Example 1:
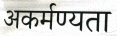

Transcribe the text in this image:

अकर्मण्यता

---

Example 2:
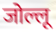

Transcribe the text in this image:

जोल्लू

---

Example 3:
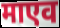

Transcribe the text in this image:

माएव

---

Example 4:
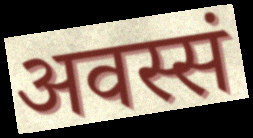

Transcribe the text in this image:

अवस्सं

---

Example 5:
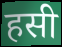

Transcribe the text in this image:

हसी